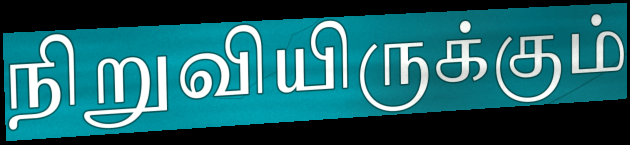
நிறுவியிருக்கும்